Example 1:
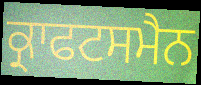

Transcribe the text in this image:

ਕ੍ਰਾਫਟਸਮੈਨ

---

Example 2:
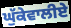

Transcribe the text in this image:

ਘੁੱਕੇਵਾਲੀਏ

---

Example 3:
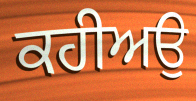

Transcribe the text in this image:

ਕਹੀਅਉ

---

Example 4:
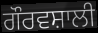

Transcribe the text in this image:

ਗੌਰਵਸ਼ਾਲੀ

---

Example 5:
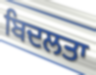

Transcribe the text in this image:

ਬਿਦਲਤਾ